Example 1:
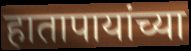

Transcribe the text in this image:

हातापायांच्या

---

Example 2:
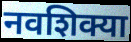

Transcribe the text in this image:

नवशिक्या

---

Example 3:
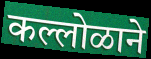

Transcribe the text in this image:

कल्लोळाने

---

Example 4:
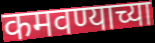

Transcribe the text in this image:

कमवण्याच्या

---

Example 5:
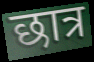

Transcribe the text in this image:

छात्र